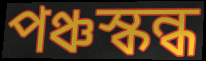
পঞ্চস্কন্ধ